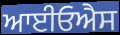
ਆਈਓਐਸ